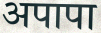
अपापा